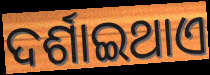
ଦର୍ଶାଇଥାଏ